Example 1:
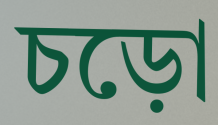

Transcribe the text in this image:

চড়ো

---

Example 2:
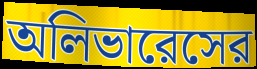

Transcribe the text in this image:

অলিভারেসের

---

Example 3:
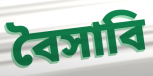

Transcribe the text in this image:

বৈসাবি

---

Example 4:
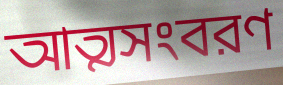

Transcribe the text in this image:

আত্মসংবরণ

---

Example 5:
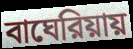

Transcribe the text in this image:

বাঘেরিয়ায়